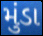
મુંડા